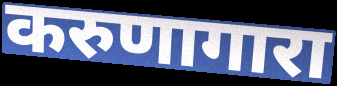
करुणागारा